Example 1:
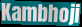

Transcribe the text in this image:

Kambhoji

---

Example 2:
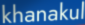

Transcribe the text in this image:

khanakul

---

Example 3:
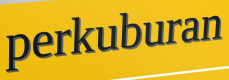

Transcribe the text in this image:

perkuburan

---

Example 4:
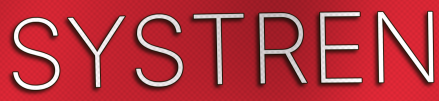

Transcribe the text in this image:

SYSTREN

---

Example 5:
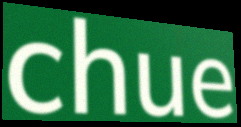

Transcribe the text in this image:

chue